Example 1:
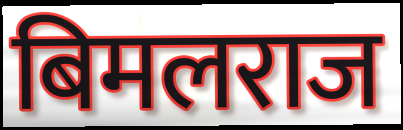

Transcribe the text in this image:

बिमलराज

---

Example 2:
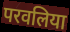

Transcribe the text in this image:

परवलिया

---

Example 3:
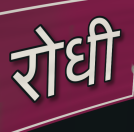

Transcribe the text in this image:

रोधी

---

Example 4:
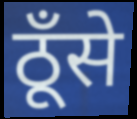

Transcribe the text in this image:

ठूँसे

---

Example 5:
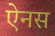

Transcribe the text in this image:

ऐनस